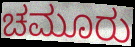
ಚಮೂರು